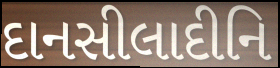
દાનસીલાદીનિ